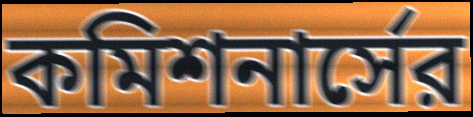
কমিশনার্সের